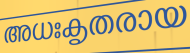
അധഃകൃതരായ